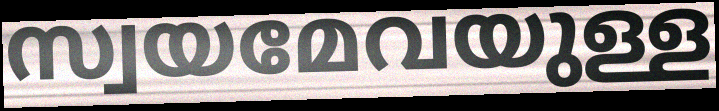
സ്വയമേവയുള്ള